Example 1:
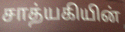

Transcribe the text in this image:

சாத்யகியின்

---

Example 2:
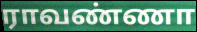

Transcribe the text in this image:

ராவண்ணா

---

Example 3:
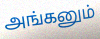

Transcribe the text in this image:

அங்கனும்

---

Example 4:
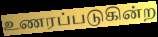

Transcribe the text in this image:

உணரப்படுகின்ற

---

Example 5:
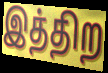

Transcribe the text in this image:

இத்திற